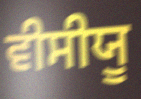
ਵੀਸੀਯੂ